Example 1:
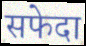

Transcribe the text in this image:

सफेदा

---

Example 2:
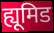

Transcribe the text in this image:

ह्यूमिड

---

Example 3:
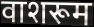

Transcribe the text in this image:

वाशरूम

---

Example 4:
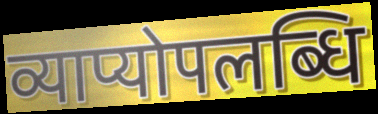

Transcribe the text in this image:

व्याप्योपलब्धि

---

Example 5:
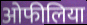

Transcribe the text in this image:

ओफीलिया